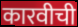
कारवीची